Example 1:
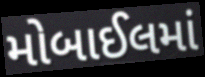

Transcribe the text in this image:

મોબાઈલમાં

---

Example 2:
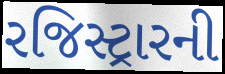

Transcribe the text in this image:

રજિસ્ટ્રારની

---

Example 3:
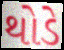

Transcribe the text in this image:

થોડે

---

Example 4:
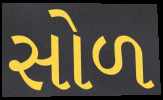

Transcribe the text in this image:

સોળ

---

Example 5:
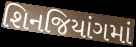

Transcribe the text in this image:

શિનજિયાંગમાં